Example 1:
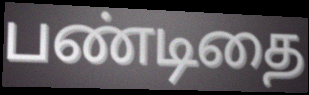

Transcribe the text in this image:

பண்டிதை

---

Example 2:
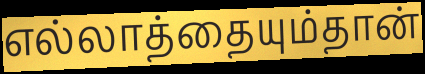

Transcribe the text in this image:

எல்லாத்தையும்தான்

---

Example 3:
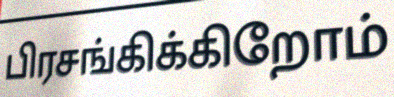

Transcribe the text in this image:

பிரசங்கிக்கிறோம்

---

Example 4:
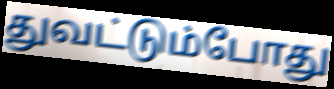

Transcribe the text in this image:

துவட்டும்போது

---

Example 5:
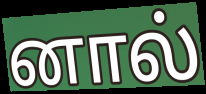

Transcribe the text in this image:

னால்